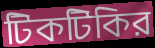
টিকটিকির